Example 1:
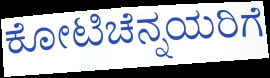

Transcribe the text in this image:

ಕೋಟಿಚೆನ್ನಯರಿಗೆ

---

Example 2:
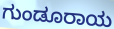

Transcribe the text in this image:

ಗುಂಡೂರಾಯ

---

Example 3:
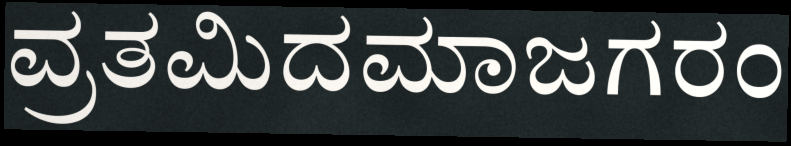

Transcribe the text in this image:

ವ್ರತಮಿದಮಾಜಗರಂ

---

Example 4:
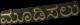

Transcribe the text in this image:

ಮೂಡಿಸಲು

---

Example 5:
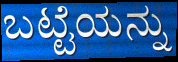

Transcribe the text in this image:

ಬಟ್ಟೆಯನ್ನು